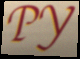
PY